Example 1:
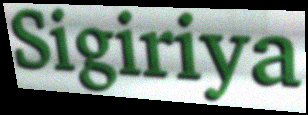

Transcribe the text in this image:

Sigiriya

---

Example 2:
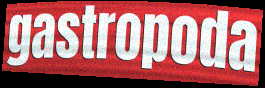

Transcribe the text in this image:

gastropoda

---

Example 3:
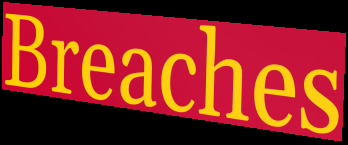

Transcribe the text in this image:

Breaches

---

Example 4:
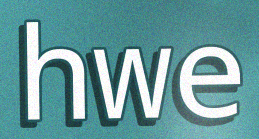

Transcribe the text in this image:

hwe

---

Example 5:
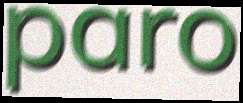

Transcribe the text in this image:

paro